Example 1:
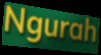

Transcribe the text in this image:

Ngurah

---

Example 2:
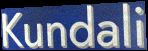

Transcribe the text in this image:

Kundali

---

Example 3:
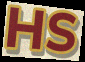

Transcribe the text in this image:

HS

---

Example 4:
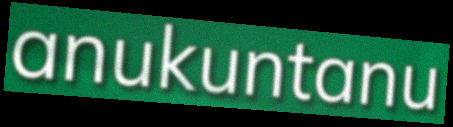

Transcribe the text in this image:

anukuntanu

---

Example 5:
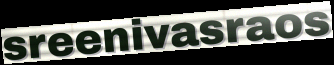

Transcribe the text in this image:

sreenivasraos